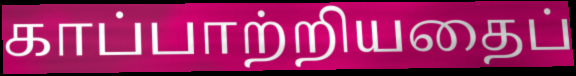
காப்பாற்றியதைப்